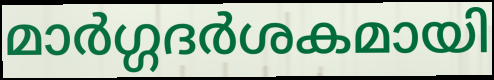
മാർഗ്ഗദർശകമായി